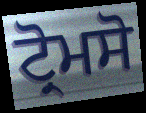
ਟ੍ਰੋਮਸੋ